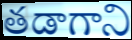
తడాగాని